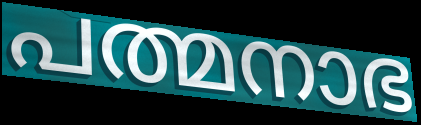
പത്മനാഭ